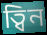
ত্বিন